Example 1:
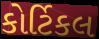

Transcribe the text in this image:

કોર્ટિકલ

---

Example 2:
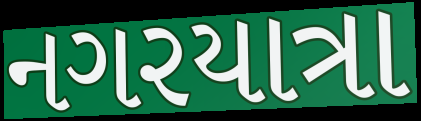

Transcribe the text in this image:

નગરયાત્રા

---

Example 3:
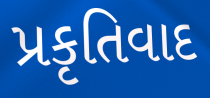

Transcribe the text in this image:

પ્રકૃતિવાદ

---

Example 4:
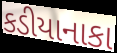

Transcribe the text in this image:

કડીયાનાકા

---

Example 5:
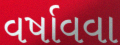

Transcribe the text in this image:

વર્ષાવવા